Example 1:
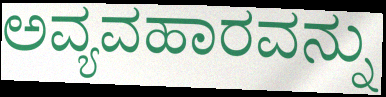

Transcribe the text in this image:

ಅವ್ಯವಹಾರವನ್ನು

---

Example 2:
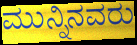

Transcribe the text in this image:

ಮುನ್ನಿನವರು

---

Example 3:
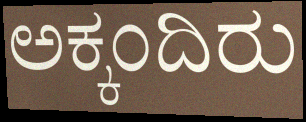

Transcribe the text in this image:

ಅಕ್ಕಂದಿರು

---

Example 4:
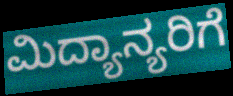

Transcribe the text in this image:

ಮಿದ್ಯಾನ್ಯರಿಗೆ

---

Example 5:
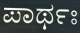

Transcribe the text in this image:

ಪಾರ್ಥಃ